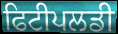
ਫਿਟੀਪਲਡੀ